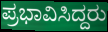
ಪ್ರಭಾವಿಸಿದ್ದರು